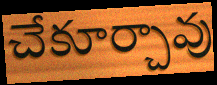
చేకూర్చావు